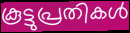
കൂട്ടുപ്രതികൾ